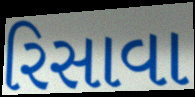
રિસાવા